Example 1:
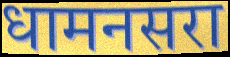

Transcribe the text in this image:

धामनसरा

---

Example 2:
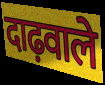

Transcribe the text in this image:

दाढ़वाले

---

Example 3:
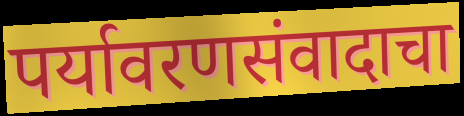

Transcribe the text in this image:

पर्यावरणसंवादाचा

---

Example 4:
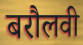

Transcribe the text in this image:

बरौलवी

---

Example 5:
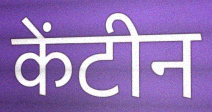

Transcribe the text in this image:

केंटीन